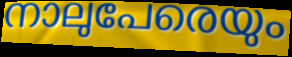
നാലുപേരെയും